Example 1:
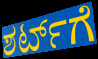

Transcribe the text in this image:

ಶರ್ಟ್‌ಗೆ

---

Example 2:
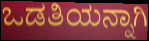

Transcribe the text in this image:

ಒಡತಿಯನ್ನಾಗಿ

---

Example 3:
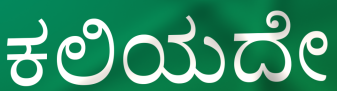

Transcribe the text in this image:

ಕಲಿಯದೇ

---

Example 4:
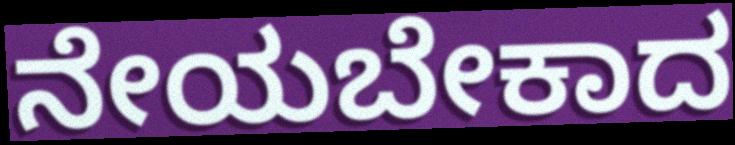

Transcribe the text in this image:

ನೇಯಬೇಕಾದ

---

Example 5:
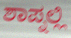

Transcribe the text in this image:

ಶಾಪ್ನಲ್ಲಿ